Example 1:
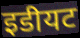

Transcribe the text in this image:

इडीयट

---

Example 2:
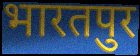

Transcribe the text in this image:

भारतपुर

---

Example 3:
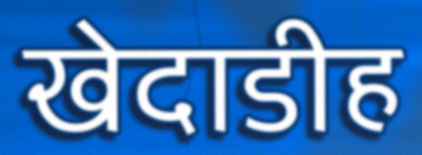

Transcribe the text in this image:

खेदाडीह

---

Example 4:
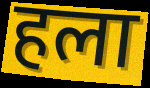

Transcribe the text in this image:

हला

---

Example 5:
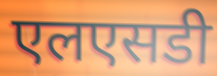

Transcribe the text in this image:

एलएसडी